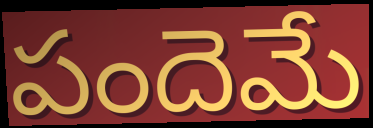
పందెమే